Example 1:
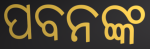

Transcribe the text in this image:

ପବନଙ୍କ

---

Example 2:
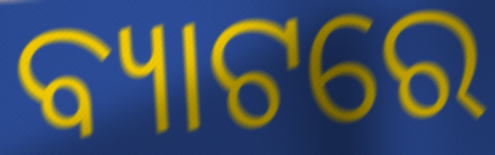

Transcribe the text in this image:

ବ୍ୟାଟରେ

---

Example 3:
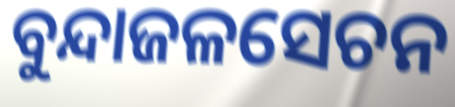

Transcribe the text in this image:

ବୁନ୍ଦାଜଳସେଚନ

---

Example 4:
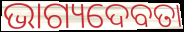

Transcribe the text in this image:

ଭାଗ୍ୟଦେବତା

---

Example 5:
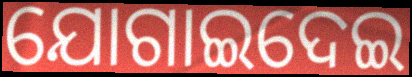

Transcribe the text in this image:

ଯୋଗାଇଦେଇ